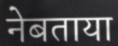
नेबताया